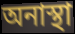
অনাস্থা